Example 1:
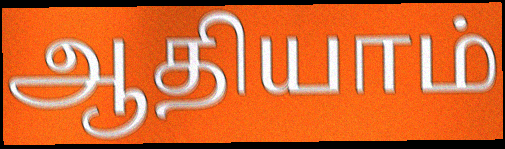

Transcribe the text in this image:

ஆதியாம்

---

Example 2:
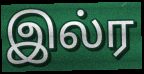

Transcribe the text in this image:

இல்ர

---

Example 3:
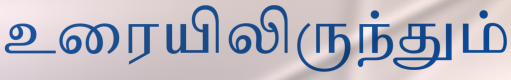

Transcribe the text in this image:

உரையிலிருந்தும்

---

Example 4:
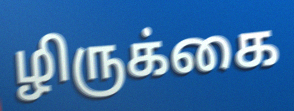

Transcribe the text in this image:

ழிருக்கை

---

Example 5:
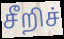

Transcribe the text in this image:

சீறிச்